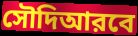
সৌদিআরবে